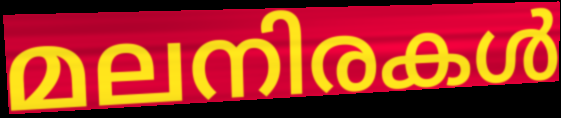
മലനിരകൾ